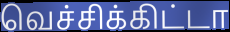
வெச்சிக்கிட்டா